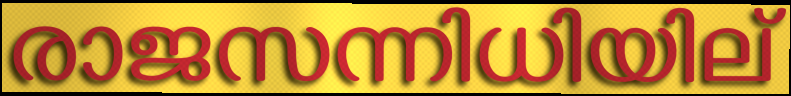
രാജസന്നിധിയില്